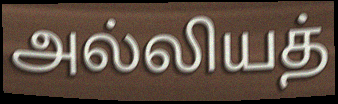
அல்லியத்